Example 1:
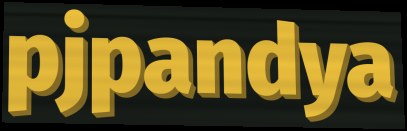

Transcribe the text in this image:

pjpandya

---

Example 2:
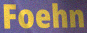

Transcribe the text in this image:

Foehn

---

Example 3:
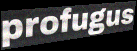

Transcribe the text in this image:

profugus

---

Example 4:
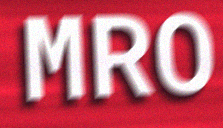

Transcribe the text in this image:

MRO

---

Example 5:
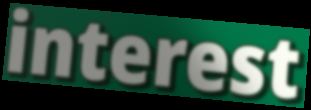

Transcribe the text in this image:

interest